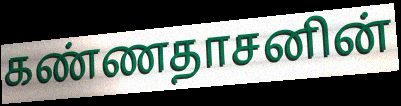
கண்ணதாசனின்